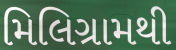
મિલિગ્રામથી